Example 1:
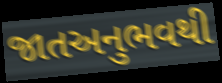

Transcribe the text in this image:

જાતઅનુભવથી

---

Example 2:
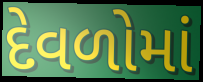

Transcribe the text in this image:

દેવળોમાં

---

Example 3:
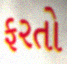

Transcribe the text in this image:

ફરતો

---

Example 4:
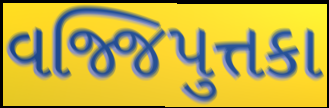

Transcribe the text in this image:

વજ્જિપુત્તકા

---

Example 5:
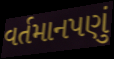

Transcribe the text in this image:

વર્તમાનપણું